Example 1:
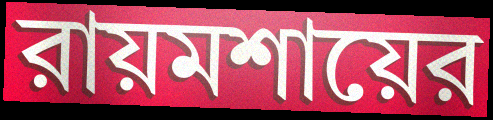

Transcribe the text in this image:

রায়মশায়ের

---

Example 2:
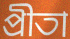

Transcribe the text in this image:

প্রীতা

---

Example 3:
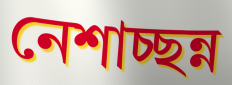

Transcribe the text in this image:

নেশাচ্ছন্ন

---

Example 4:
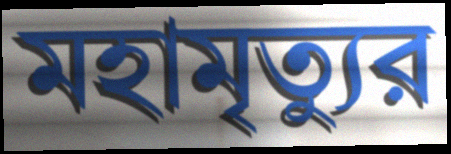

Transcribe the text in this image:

মহামৃত্যুর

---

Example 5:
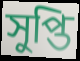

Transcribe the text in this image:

সুপ্তি